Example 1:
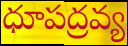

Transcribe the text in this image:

ధూపద్రవ్య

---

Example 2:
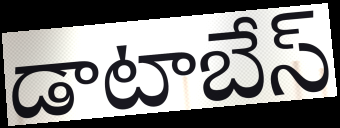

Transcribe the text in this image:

డాటాబేస్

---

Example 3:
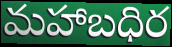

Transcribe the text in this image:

మహాబధిర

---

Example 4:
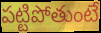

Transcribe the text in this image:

పట్టిపోతుంటే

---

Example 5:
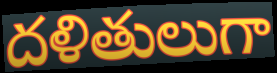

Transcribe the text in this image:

దళితులుగా